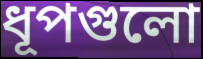
ধূপগুলো